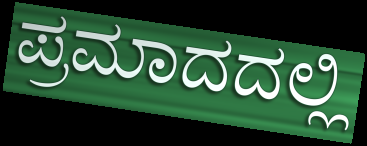
ಪ್ರಮಾದದಲ್ಲಿ